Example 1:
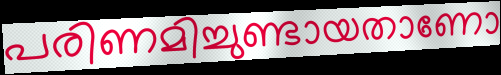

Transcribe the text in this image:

പരിണമിച്ചുണ്ടായതാണോ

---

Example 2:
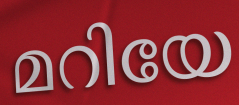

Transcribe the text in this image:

മറിയേ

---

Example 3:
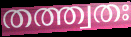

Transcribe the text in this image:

തത്ത്വതഃ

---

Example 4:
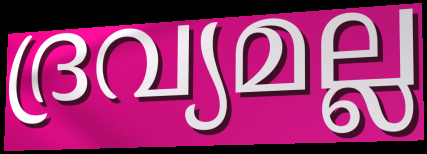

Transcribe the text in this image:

ദ്രവ്യമല്ല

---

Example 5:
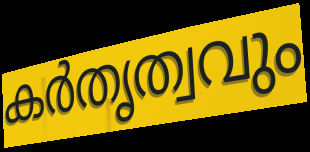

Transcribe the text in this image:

കർതൃത്വവും